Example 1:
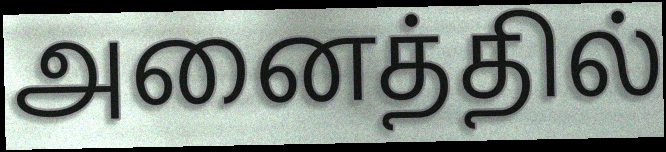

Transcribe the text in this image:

அனைத்தில்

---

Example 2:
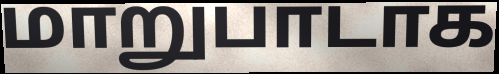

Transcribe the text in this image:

மாறுபாடாக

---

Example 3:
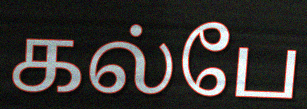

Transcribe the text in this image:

கல்பே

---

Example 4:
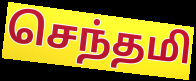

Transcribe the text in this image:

செந்தமி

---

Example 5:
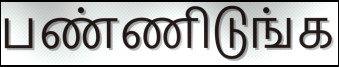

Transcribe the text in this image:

பண்ணிடுங்க